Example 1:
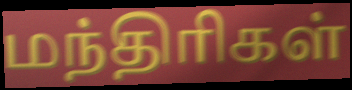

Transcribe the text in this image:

மந்திரிகள்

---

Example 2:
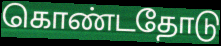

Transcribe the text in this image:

கொண்டதோடு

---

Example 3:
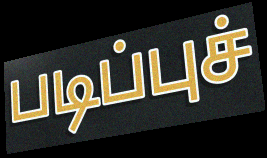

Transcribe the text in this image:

படிப்புச்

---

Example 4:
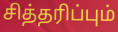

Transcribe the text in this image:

சித்தரிப்பும்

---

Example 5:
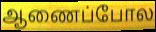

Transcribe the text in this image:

ஆணைப்போல